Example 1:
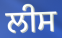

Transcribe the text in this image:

ਲੀਸ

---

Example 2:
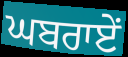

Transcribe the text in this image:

ਘਬਰਾਏਂ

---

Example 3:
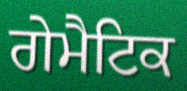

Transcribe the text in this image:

ਗੇਮੈਟਿਕ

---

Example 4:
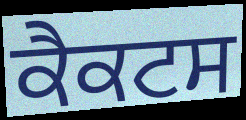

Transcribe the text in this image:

ਕੈਕਟਸ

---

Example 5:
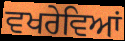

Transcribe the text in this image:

ਵਖਰੇਵਿਆਂ